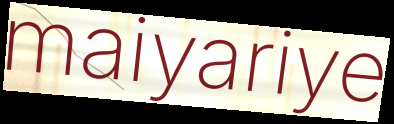
maiyariye